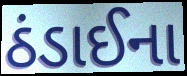
ઠંડાઈના